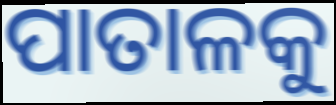
ପାତାଳକୁ